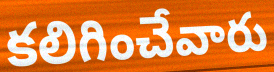
కలిగించేవారు